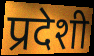
प्रदेशी